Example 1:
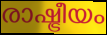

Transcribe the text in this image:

രാഷ്ട്രീയം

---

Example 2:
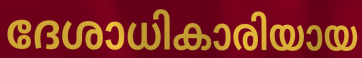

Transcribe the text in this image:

ദേശാധികാരിയായ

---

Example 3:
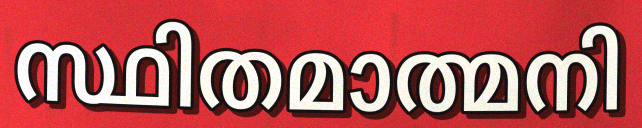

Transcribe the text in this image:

സ്ഥിതമാത്മനി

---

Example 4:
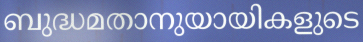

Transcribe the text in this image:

ബുദ്ധമതാനുയായികളുടെ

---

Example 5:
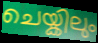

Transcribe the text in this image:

ചെയ്കിലും